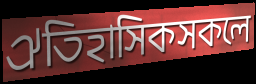
ঐতিহাসিকসকলে